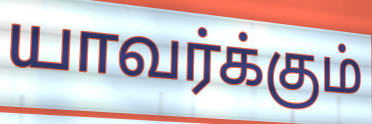
யாவர்க்கும்